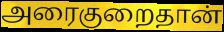
அரைகுறைதான்